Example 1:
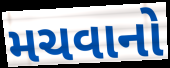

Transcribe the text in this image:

મચવાનો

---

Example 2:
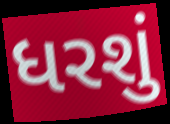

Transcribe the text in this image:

ધરશું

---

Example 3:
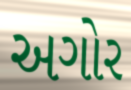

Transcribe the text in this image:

અગોર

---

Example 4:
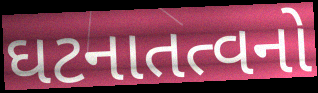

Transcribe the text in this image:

ઘટનાતત્વનો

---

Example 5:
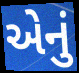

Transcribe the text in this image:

એેનું